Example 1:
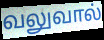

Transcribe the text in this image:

வலுவால்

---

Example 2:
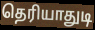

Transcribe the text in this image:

தெரியாதுடி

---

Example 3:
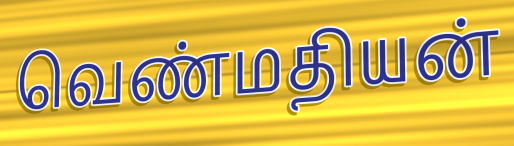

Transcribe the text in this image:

வெண்மதியன்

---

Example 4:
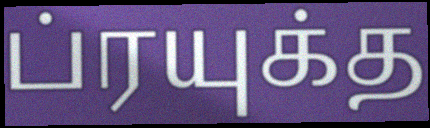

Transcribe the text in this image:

ப்ரயுக்த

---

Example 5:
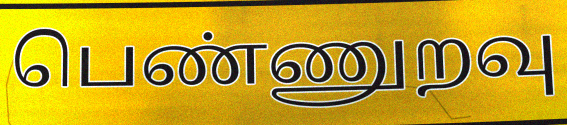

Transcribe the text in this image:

பெண்ணுறவு